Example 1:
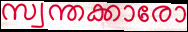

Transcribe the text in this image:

സ്വന്തക്കാരോ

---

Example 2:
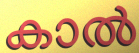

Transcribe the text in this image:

കാൽ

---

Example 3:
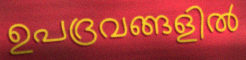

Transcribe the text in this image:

ഉപദ്രവങ്ങളിൽ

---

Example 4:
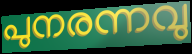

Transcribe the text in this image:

പുനരന്നവു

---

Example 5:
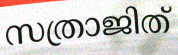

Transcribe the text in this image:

സത്രാജിത്